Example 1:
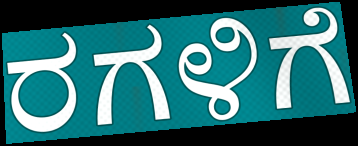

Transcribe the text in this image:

ರಗಳಿಗೆ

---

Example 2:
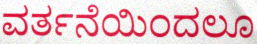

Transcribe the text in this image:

ವರ್ತನೆಯಿಂದಲೂ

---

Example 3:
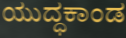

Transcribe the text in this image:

ಯುದ್ಧಕಾಂಡ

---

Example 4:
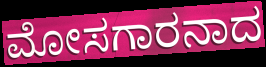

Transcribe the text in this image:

ಮೋಸಗಾರನಾದ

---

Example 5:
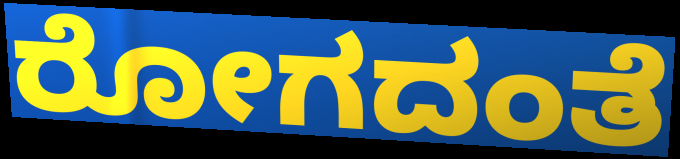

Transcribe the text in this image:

ರೋಗದಂತೆ